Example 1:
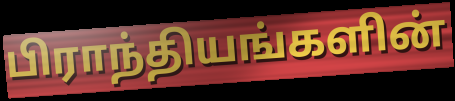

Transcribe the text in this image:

பிராந்தியங்களின்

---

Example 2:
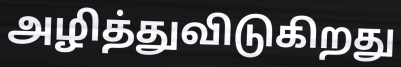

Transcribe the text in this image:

அழித்துவிடுகிறது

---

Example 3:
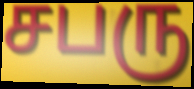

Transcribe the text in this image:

சபரு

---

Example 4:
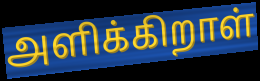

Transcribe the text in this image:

அளிக்கிறாள்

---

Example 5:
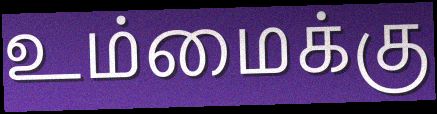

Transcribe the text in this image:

உம்மைக்கு